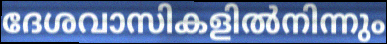
ദേശവാസികളിൽനിന്നും